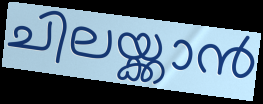
ചിലയ്ക്കാൻ